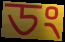
ডং